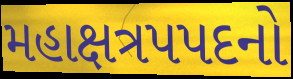
મહાક્ષત્રપપદનો